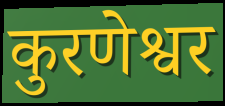
कुरणेश्वर